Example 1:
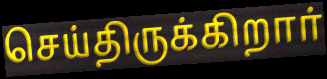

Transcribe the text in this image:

செய்திருக்கிறார்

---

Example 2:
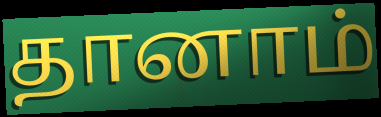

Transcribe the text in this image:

தானாம்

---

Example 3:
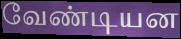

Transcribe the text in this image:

வேண்டியன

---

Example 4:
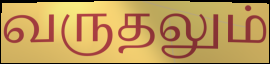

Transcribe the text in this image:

வருதலும்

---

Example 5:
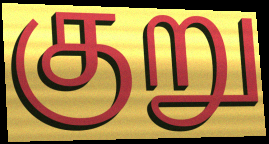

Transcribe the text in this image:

குறு